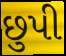
છુપી